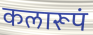
कलारूपं